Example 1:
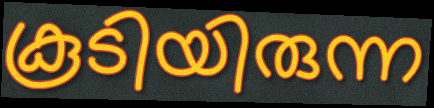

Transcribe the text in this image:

കൂടിയിരുന്ന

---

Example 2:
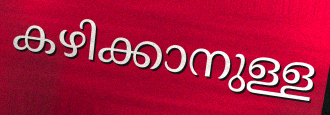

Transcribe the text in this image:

കഴിക്കാനുള്ള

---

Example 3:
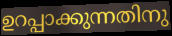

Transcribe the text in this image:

ഉറപ്പാക്കുന്നതിനു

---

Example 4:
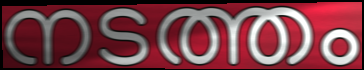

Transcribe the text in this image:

നടത്തം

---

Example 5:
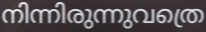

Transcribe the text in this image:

നിന്നിരുന്നുവത്രെ